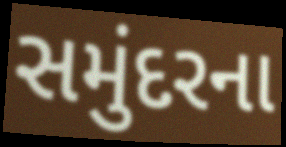
સમુંદરના